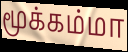
மூக்கம்மா